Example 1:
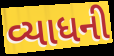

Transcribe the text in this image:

વ્યાધની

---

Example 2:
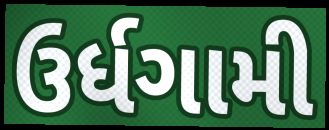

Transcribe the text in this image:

ઉર્ધગામી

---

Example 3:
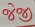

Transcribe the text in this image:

જેજી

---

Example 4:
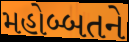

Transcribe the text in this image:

મહોબ્બતને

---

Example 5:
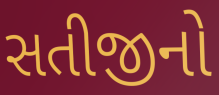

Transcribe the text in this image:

સતીજીનો